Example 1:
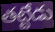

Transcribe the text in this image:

తట్టేడు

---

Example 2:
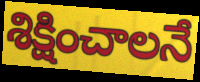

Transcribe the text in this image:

శిక్షించాలనే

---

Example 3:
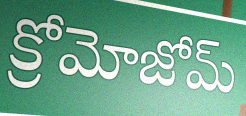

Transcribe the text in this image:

క్రోమోజోమ్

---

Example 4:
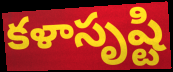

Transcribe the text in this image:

కళాసృష్టి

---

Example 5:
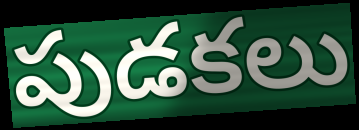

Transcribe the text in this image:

పుడకలు